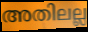
അതിലല്ല